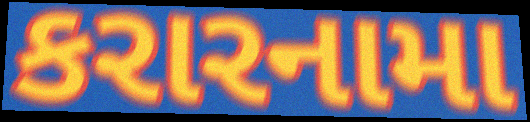
કરારનામા